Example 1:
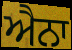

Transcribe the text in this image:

ਐਨਾ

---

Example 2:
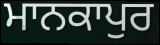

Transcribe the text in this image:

ਮਾਨਕਾਪੁਰ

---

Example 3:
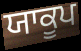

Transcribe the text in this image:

ਯਾਕੂਪ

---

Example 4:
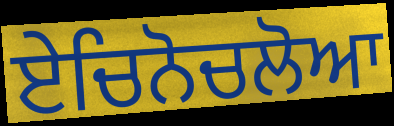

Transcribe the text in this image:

ਏਚਿਨੋਚਲੋਆ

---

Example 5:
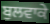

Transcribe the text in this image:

ਬੁਲਵਾਕੇ